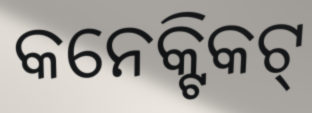
କନେକ୍ଟିକଟ୍